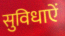
सुविधाऐं